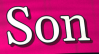
Son